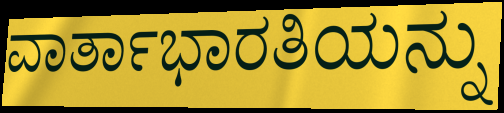
ವಾರ್ತಾಭಾರತಿಯನ್ನು